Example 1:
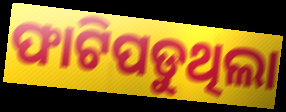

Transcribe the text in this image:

ଫାଟିପଡୁଥିଲା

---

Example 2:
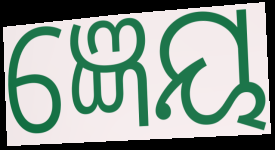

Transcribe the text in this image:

ଜ୍ଞେୟ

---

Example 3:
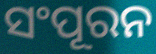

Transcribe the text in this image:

ସଂପୂରନ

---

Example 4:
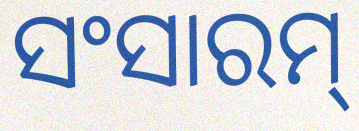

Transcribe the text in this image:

ସଂସାରମ୍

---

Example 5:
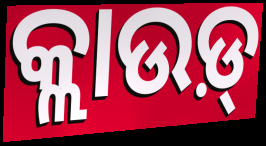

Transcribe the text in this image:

କ୍ଲାଉଡ଼୍